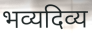
भव्यदिव्य